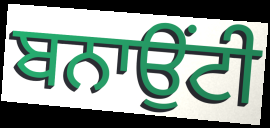
ਬਨਾਉਂਟੀ